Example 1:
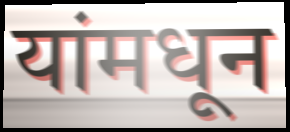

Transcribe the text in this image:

यांमधून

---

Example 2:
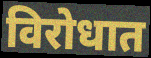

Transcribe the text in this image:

विरोधात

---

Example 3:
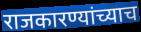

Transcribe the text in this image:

राजकारण्यांच्याच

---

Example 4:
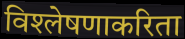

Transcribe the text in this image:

विश्लेषणाकरिता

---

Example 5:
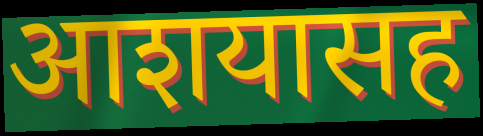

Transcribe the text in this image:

आशयासह